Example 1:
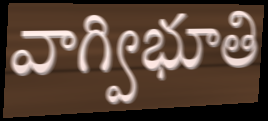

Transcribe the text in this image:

వాగ్విభూతి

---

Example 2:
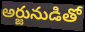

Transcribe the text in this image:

అర్జునుడితో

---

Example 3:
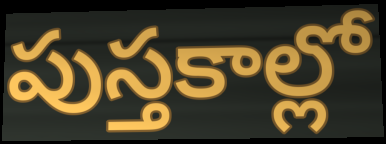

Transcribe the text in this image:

పుస్తకాల్లో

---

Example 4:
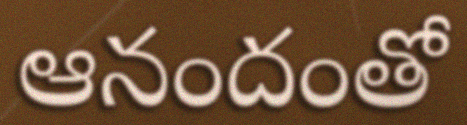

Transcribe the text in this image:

ఆనందంతో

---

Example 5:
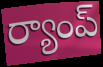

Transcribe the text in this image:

ర్యాంప్